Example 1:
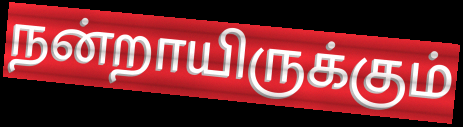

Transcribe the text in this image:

நன்றாயிருக்கும்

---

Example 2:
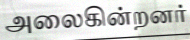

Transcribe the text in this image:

அலைகின்றனர்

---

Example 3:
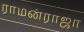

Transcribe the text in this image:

ராமன்ராஜா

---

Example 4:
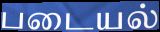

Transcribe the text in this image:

படையல்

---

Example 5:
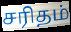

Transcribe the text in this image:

சரிதம்